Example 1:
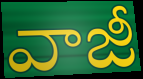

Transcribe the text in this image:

వాజీ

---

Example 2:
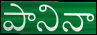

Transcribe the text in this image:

పానినా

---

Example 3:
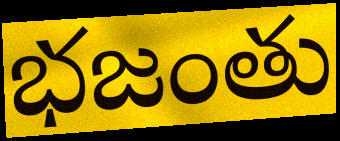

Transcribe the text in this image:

భజంతు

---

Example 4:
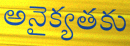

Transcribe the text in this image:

అనైక్యతకు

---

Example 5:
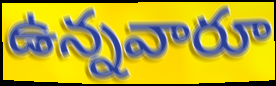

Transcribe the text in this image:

ఉన్నవారూ